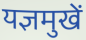
यज्ञमुखें